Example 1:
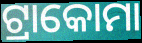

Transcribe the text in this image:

ଟ୍ରାକୋମା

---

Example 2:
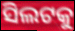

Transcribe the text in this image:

ସିଲଟକୁ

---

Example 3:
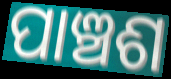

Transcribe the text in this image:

ପାଞ୍ଚଶ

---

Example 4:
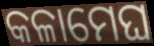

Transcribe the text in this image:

କଳାମେଘ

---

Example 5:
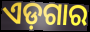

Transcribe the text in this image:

ଏଡ଼ଗାର